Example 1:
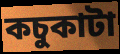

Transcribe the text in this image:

কচুকাটা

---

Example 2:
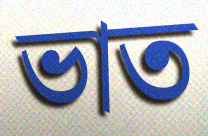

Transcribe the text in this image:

ভাত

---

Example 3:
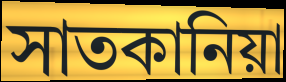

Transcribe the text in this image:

সাতকানিয়া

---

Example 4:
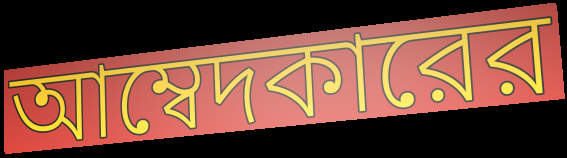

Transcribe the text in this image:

আম্বেদকারের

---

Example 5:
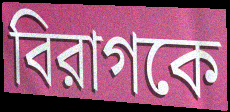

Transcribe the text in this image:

বিরাগকে